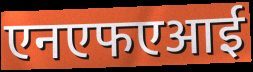
एनएफएआई